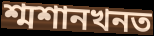
শ্মশানখনত